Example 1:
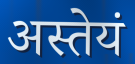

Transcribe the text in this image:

अस्तेयं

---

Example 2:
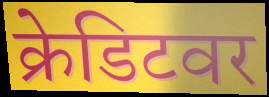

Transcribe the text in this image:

क्रेडिटवर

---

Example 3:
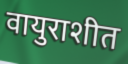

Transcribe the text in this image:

वायुराशीत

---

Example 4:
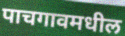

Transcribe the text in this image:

पाचगावमधील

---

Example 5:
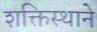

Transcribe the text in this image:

शक्तिस्थाने